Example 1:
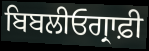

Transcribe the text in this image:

ਬਿਬਲੀਓਗ੍ਰਾਫ਼ੀ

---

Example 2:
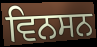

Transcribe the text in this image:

ਵਿਨਸਨ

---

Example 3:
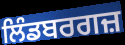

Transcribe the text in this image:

ਲਿੰਡਬਰਗਜ਼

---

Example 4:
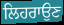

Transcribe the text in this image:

ਲਿਹਰਾਉਣ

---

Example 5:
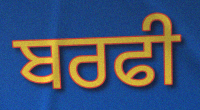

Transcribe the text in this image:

ਬਰਫੀ